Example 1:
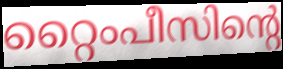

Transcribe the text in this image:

റ്റൈംപീസിന്റെ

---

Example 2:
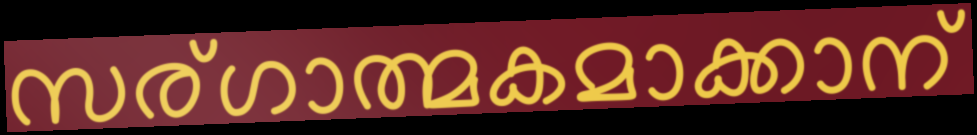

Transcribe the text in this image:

സര്ഗാത്മകമാക്കാന്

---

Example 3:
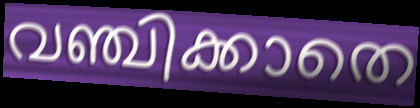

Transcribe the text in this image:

വഞ്ചിക്കാതെ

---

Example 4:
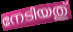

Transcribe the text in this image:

നേടിയതു്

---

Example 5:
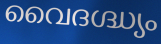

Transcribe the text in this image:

വൈദഗ്ദ്ധ്യം